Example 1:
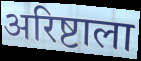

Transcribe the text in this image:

अरिष्टाला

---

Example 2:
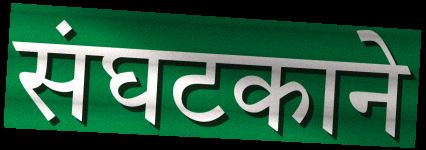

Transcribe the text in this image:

संघटकाने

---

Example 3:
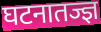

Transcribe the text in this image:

घटनातज्ज्ञ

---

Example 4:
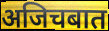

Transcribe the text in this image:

अजिचबात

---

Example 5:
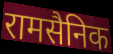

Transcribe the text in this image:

रामसैनिक